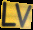
LV